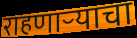
राहणाऱ्याचा